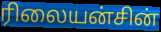
ரிலையன்சின்